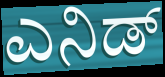
ಎನಿಡ್